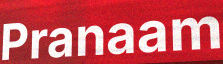
Pranaam